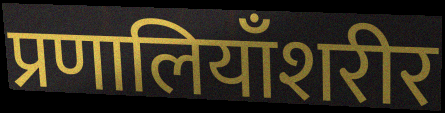
प्रणालियाँशरीर